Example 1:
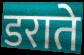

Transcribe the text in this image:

डराते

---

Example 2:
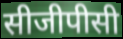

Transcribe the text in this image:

सीजीपीसी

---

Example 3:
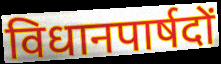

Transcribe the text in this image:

विधानपार्षदों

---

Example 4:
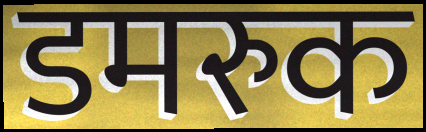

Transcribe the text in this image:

डमरुक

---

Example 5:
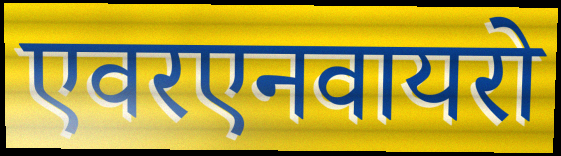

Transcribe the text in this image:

एवरएनवायरो